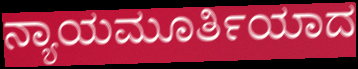
ನ್ಯಾಯಮೂರ್ತಿಯಾದ